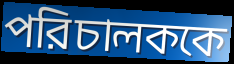
পরিচালককে